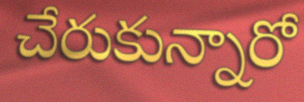
చేరుకున్నారో